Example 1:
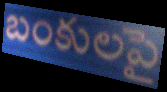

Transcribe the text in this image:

బంకులపై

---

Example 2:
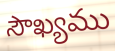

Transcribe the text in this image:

సౌఖ్యము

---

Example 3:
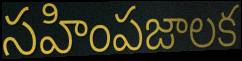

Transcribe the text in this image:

సహింపజాలక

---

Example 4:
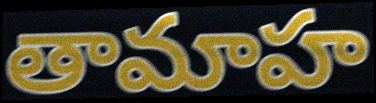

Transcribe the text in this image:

తామాహ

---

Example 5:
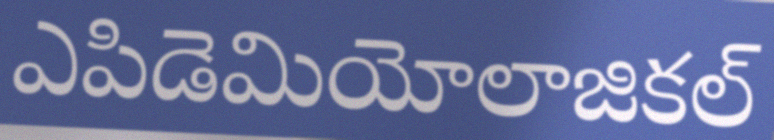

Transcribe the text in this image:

ఎపిడెమియోలాజికల్